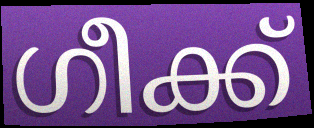
ഗീക്ക്